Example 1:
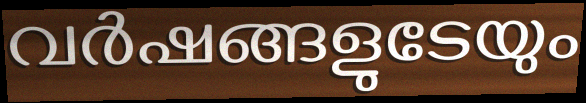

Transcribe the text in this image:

വർഷങ്ങളുടേയും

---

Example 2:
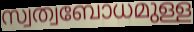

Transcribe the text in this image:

സ്വത്വബോധമുള്ള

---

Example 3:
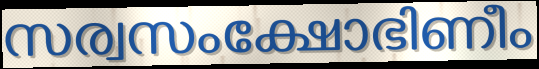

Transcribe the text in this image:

സര്വസംക്ഷോഭിണീം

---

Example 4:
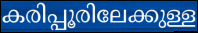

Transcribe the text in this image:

കരിപ്പൂരിലേക്കുള്ള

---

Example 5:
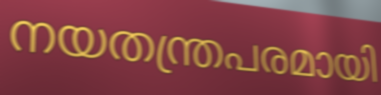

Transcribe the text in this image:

നയതന്ത്രപരമായി